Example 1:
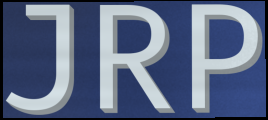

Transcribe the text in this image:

JRP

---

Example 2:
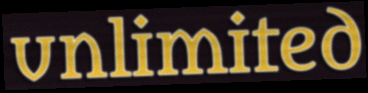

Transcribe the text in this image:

unlimited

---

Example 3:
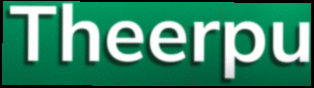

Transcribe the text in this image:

Theerpu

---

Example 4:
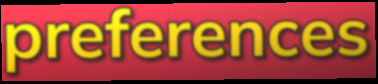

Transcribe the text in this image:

preferences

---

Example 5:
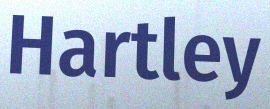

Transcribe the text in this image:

Hartley